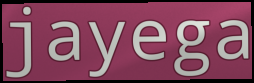
jayega